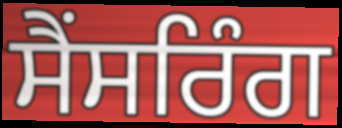
ਸੈਂਸਰਿੰਗ